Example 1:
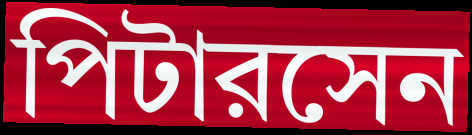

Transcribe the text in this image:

পিটারসেন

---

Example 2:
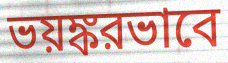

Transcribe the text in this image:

ভয়ঙ্করভাবে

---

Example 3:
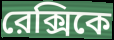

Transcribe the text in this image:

রেক্সিকে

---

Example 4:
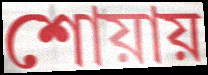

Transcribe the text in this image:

শোয়ায়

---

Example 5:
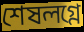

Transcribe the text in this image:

শেষলগ্নে